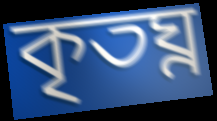
কৃতঘ্ন